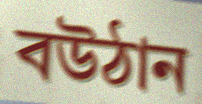
বউঠান